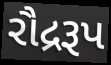
રૌદ્રરૂપ